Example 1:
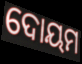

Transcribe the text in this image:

ଦୋୟମ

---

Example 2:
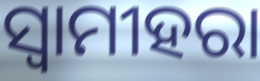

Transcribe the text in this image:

ସ୍ଵାମୀହରା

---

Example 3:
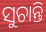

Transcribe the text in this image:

ସୁଚାନ୍ତି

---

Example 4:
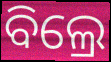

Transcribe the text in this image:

ବିଲ୍ରେ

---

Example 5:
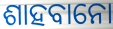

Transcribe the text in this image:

ଶାହବାନୋ